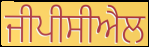
ਜੀਪੀਸੀਐਲ